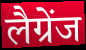
लैग्रेंज